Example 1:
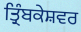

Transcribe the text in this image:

ਤ੍ਰਿੰਬਕੇਸ਼ਵਰ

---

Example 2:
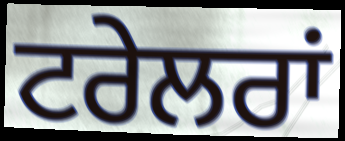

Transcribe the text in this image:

ਟਰੇਲਰਾਂ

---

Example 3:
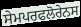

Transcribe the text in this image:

ਸੇਮਪਰਫਲੋਰੇਨਸ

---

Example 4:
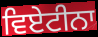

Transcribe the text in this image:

ਵਿਏਟੀਨਾ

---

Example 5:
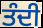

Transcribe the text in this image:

ਤੰਦੀ